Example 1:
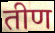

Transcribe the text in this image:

तीण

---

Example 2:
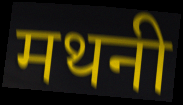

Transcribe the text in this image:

मथनी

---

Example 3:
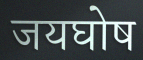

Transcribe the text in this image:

जयघोष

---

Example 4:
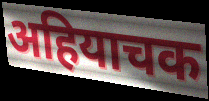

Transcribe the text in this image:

अहियाचक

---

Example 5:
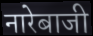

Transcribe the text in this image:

नारेबाजी